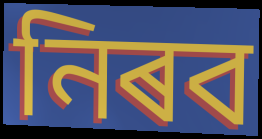
নিৰব